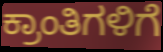
ಕ್ರಾಂತಿಗಳಿಗೆ